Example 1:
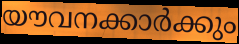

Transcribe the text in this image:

യൗവനക്കാർക്കും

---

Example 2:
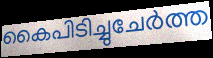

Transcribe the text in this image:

കൈപിടിച്ചുചേർത്ത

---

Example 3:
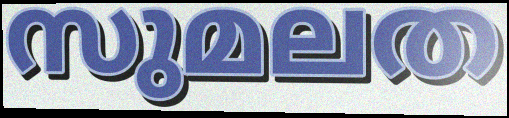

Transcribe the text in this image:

സുമലത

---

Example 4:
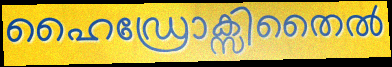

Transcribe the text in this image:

ഹൈഡ്രോക്സിതൈൽ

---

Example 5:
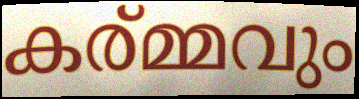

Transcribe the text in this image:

കര്മ്മവും